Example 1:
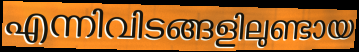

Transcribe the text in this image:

എന്നിവിടങ്ങളിലുണ്ടായ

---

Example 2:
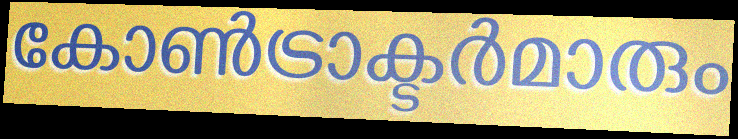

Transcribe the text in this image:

കോൺട്രാക്ടർമാരും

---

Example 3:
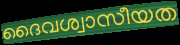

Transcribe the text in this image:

ദൈവശ്വാസീയത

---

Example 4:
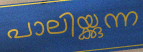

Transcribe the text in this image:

പാലിയ്ക്കുന്ന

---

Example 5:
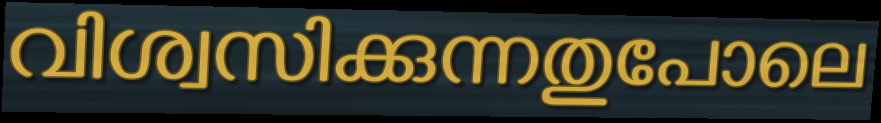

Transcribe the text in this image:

വിശ്വസിക്കുന്നതുപോലെ